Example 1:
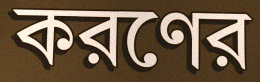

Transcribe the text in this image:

করণের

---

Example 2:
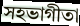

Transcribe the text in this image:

সহভাগীতা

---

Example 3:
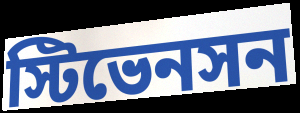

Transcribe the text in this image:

স্টিভেনসন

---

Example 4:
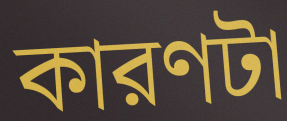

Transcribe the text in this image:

কারণটা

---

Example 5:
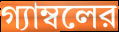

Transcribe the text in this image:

গ্যাম্বলের